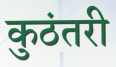
कुठंतरी